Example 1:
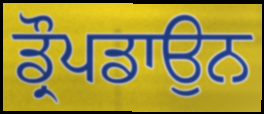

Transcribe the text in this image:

ਡ੍ਰੌਪਡਾਉਨ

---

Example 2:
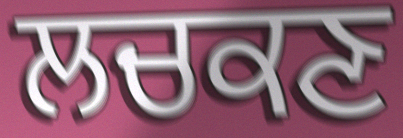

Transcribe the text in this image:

ਲਚਕਣ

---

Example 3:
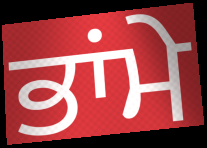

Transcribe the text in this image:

ਭਾਂਮੇ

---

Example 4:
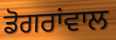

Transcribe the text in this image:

ਡੋਗਰਾਂਵਾਲ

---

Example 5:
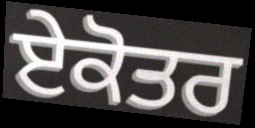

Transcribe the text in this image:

ਏਕੋਤਰ